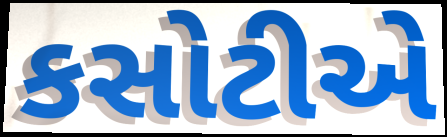
કસોટીએ